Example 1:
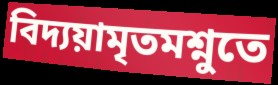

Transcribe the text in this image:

বিদ্যয়ামৃতমশ্নুতে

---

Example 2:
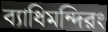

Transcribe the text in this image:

ব্যাধিমন্দিরং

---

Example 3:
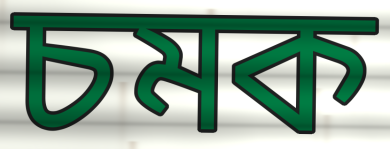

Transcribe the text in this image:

চমক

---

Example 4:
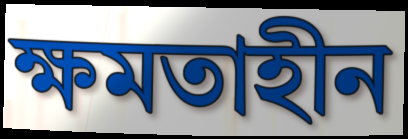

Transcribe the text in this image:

ক্ষমতাহীন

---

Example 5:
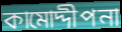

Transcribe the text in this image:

কামোদ্দীপনা